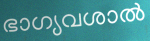
ഭാഗ്യവശാൽ